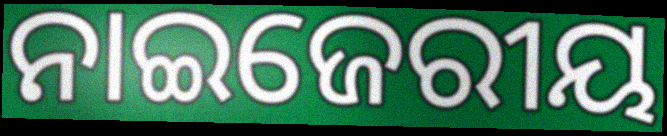
ନାଇଜେରୀୟ